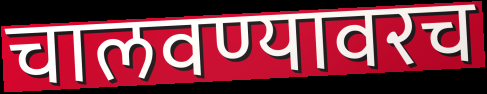
चालवण्यावरच